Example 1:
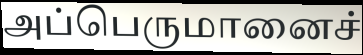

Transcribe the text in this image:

அப்பெருமானைச்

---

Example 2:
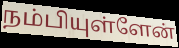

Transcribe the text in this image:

நம்பியுள்ளேன்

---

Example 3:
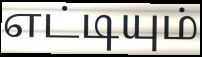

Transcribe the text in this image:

எட்டியும்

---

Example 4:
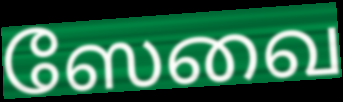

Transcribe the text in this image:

ஸேவை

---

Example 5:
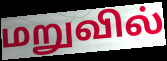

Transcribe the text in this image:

மறுவில்